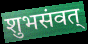
शुभसंवत्